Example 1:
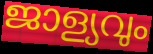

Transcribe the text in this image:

ജാള്യവും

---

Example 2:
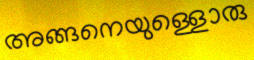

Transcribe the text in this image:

അങ്ങനെയുള്ളൊരു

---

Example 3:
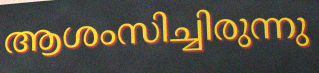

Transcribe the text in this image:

ആശംസിച്ചിരുന്നു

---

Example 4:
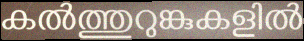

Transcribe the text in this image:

കൽത്തുറുങ്കുകളിൽ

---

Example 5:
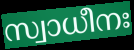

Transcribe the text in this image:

സ്വാധീനഃ